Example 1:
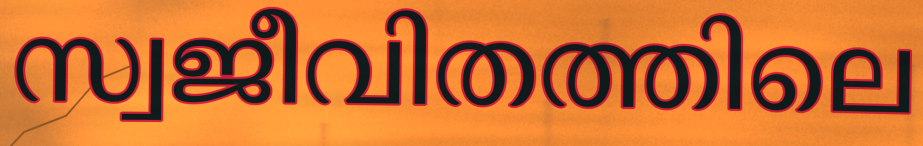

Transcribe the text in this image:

സ്വജീവിതത്തിലെ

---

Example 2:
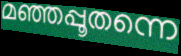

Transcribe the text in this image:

മഞ്ഞപ്പൂതന്നെ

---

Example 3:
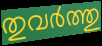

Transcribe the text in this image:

തുവർത്തു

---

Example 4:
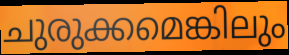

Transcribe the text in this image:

ചുരുക്കമെങ്കിലും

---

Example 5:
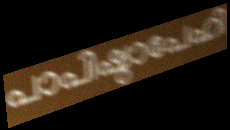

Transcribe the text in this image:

പാപിഷ്ഠാപേഹി